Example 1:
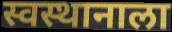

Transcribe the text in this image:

स्वस्थानाला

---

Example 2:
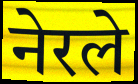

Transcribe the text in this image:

नेरले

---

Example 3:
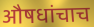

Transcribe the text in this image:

औषधांचाच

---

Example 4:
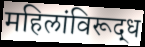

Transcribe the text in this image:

महिलांविरूद्ध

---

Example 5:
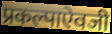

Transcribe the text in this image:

प्रकल्पाऐवजी